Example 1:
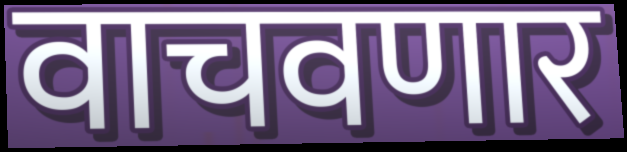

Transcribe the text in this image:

वाचवणार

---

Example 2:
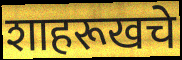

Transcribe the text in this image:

शाहरूखचे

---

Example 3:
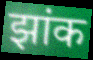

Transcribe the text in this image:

झांक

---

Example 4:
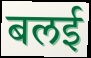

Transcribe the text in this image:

बलई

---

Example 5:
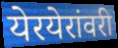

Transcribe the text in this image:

येरयेरांवरी